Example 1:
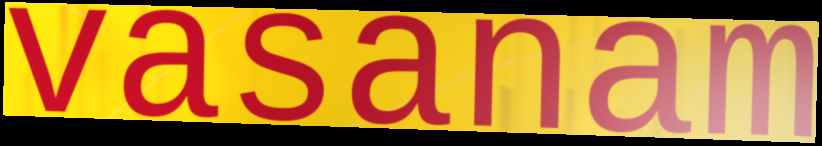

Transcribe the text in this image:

vasanam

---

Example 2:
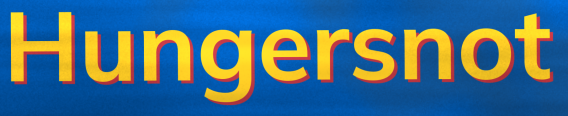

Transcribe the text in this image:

Hungersnot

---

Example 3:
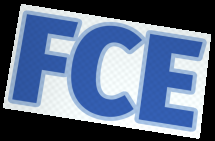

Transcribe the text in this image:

FCE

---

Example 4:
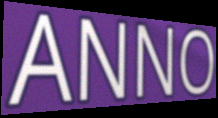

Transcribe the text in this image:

ANNO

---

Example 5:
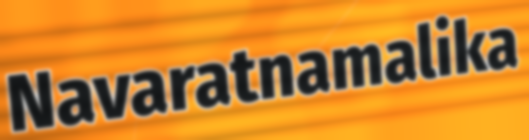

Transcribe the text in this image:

Navaratnamalika